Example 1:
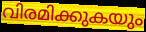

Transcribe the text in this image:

വിരമിക്കുകയും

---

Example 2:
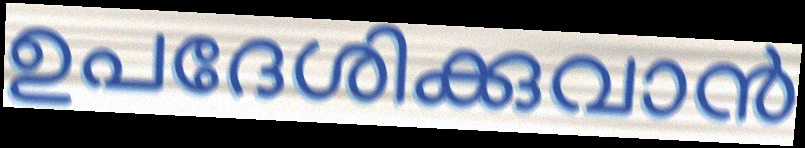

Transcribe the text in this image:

ഉപദേശിക്കുവാൻ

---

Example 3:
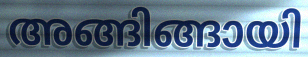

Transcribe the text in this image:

അങ്ങിങ്ങായി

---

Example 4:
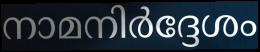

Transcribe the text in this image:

നാമനിർദ്ദേശം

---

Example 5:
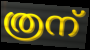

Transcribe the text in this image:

ത്രന്